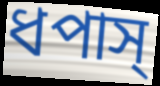
ধপাস্